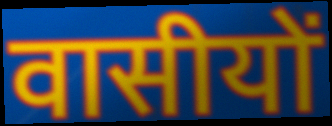
वासीयों